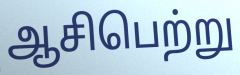
ஆசிபெற்று